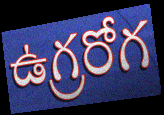
ఉగ్రరోగ